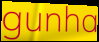
gunha